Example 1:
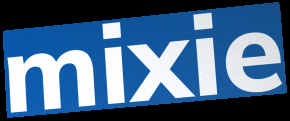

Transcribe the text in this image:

mixie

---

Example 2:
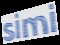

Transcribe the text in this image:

simi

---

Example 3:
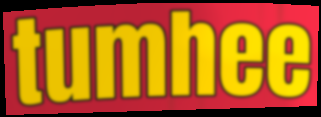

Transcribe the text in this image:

tumhee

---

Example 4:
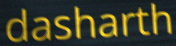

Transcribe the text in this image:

dasharth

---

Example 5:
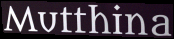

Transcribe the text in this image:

Mutthina